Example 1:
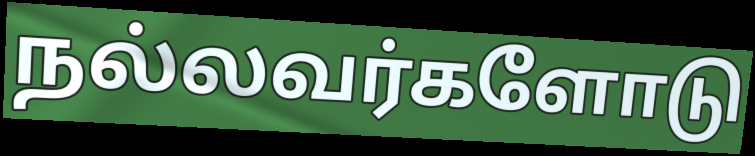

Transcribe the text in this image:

நல்லவர்களோடு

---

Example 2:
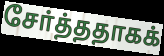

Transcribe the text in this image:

சேர்த்ததாகக்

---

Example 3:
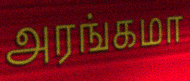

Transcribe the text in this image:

அரங்கமா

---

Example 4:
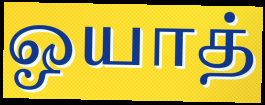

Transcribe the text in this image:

ஓயாத்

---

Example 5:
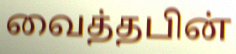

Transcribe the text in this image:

வைத்தபின்